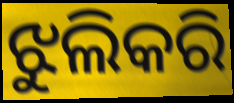
ଝୁଲିକରି